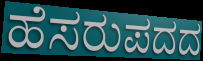
ಹೆಸರುಪದದ